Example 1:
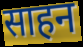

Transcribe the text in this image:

साहन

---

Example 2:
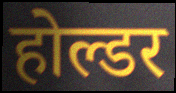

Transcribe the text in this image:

होल्डर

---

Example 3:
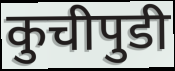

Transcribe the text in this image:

कुचीपुडी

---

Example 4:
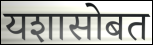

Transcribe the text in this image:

यशासोबत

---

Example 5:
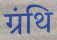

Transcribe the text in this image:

ग्रंथि